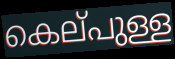
കെല്‌പുള്ള